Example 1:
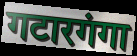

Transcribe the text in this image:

गटारगंगा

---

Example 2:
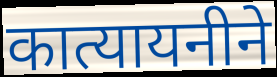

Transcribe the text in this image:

कात्यायनीने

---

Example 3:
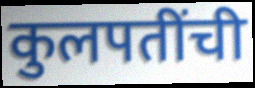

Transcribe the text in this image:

कुलपतींची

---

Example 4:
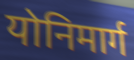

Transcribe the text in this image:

योनिमार्ग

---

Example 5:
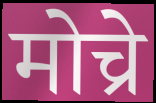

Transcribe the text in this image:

मोच्रे